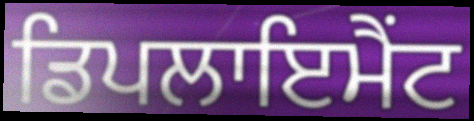
ਡਿਪਲਾਇਮੈਂਟ